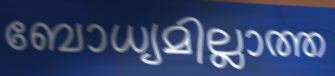
ബോധ്യമില്ലാത്ത